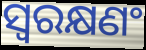
ସ୍ୱରକ୍ଷଣଂ